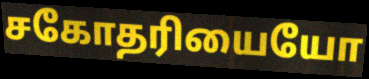
சகோதரியையோ